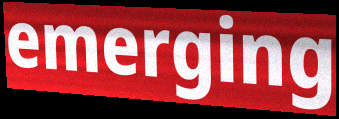
emerging